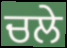
ਚਲੇ